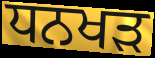
ਧਨਖੜ